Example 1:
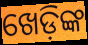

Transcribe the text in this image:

ଖେଡ଼ିଙ୍କ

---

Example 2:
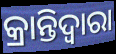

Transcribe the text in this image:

କ୍ରାନ୍ତିଦ୍ୱାରା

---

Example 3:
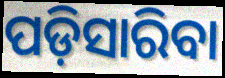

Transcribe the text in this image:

ପଡ଼ିସାରିବା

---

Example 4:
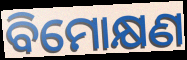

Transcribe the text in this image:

ବିମୋକ୍ଷଣ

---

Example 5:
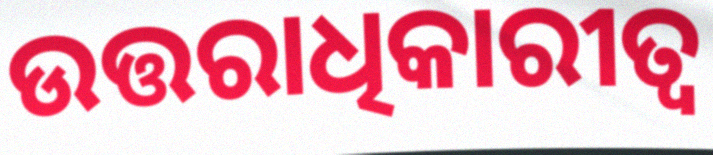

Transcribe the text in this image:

ଉତ୍ତରାଧିକାରୀତ୍ଵ